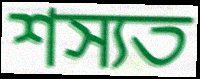
শস্যত